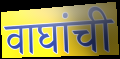
वाघांची